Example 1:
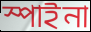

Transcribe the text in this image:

স্পাইনা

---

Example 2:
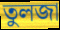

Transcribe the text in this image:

তুলজা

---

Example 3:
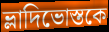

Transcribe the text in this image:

ভ্লাদিভোস্তকে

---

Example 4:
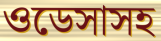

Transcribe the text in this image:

ওডেসাসহ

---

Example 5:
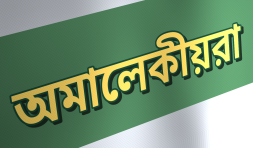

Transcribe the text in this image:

অমালেকীয়রা